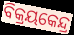
ବିକ୍ରୟକେନ୍ଦ୍ର